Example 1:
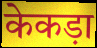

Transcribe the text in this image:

केकड़ा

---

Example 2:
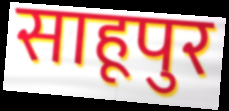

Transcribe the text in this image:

साहूपुर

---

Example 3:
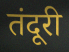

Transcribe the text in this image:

तंदूरी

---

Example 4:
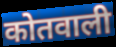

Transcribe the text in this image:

कोतवाली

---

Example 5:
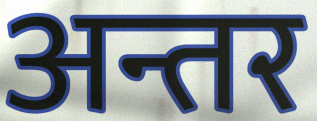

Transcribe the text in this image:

अन्तर